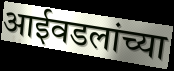
आईवडलांच्या